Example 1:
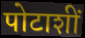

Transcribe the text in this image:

पोटाशीं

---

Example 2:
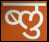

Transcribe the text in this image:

ब्लु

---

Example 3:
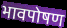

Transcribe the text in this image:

भावपोषण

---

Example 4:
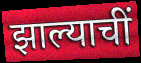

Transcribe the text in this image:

झाल्याचीं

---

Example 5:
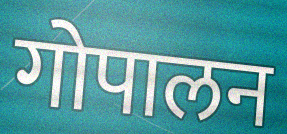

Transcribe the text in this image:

गोपालन